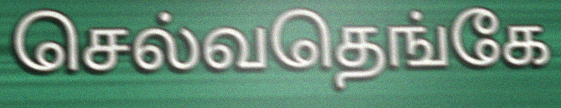
செல்வதெங்கே